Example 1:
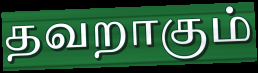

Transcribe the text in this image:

தவறாகும்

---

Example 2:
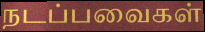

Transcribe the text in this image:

நடப்பவைகள்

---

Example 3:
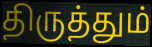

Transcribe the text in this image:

திருத்தும்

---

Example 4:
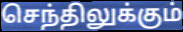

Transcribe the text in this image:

செந்திலுக்கும்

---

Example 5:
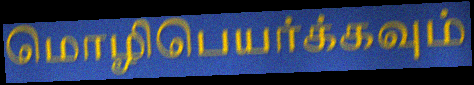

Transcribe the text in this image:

மொழிபெயர்க்கவும்